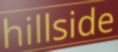
hillside